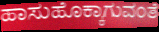
ಹಾಸುಹೊಕ್ಕಾಗುವಂತೆ